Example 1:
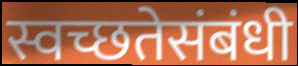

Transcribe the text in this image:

स्वच्छतेसंबंधी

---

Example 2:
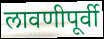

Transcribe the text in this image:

लावणीपूर्वी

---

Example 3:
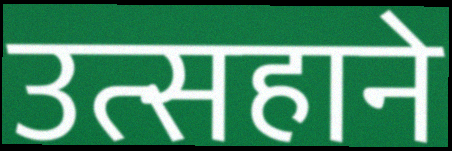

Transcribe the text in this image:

उत्सहाने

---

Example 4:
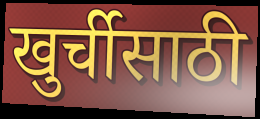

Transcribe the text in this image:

खुर्चीसाठी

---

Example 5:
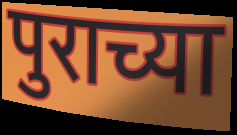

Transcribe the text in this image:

पुराच्या